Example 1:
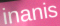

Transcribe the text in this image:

inanis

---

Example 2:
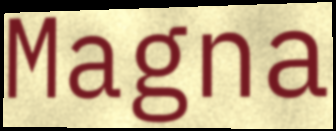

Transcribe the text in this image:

Magna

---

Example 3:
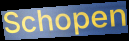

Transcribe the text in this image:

Schopen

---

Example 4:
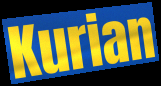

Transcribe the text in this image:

Kurian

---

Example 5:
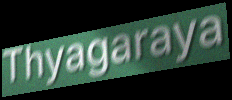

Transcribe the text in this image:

Thyagaraya